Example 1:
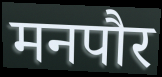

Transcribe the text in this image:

मनपौर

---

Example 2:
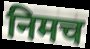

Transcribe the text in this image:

निमच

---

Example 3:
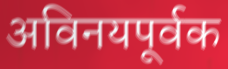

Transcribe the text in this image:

अविनयपूर्वक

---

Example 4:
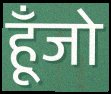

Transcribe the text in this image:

हूँजो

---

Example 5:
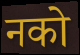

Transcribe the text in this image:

नको